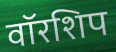
वॉरशिप